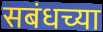
सबंधच्या